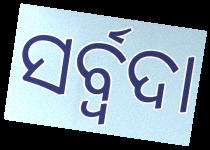
ସର୍ବ୍ବଦା